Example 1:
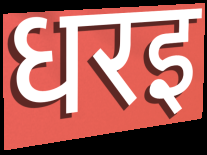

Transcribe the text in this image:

धरइ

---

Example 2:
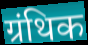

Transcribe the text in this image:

ग्रंथिक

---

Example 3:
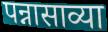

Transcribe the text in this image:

पन्नासाव्या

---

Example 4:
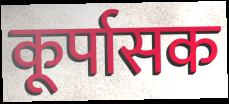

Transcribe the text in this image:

कूर्पासक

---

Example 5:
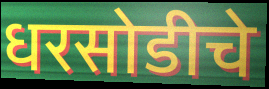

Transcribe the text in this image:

धरसोडीचे